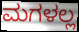
ಮಗಳಲ್ಲ